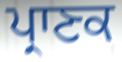
ਪ੍ਰਾਣਕ